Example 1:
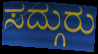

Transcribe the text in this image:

ಸದ್ಗುರು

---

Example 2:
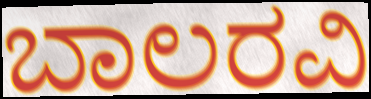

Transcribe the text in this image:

ಬಾಲರವಿ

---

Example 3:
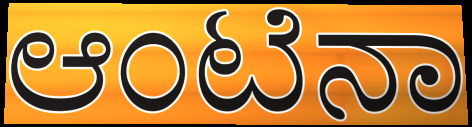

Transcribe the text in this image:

ಆಂಟೆನಾ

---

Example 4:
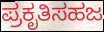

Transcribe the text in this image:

ಪ್ರಕೃತಿಸಹಜ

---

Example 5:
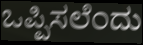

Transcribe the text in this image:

ಒಪ್ಪಿಸಲೆಂದು